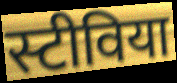
स्‍टीविया